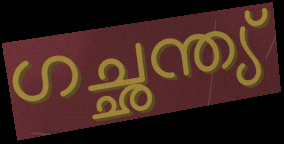
ഗച്ഛന്ത്യ്